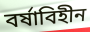
বর্ষাবিহীন